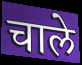
चाले